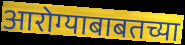
आरोग्याबाबतच्या